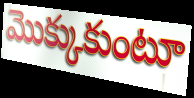
మొక్కుకుంటూ